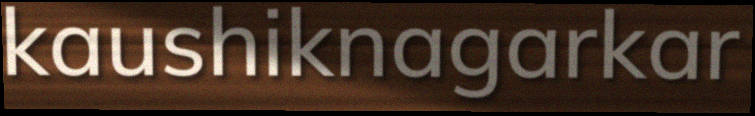
kaushiknagarkar